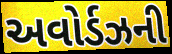
અવોર્ડઝની